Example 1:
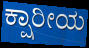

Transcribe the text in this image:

ಕ್ಷಾರೀಯ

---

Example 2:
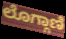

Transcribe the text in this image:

ಲೊಗ್ಗಾಣಿ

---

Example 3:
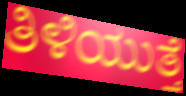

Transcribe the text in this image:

ತಿಳಿಯುತ್ತೆ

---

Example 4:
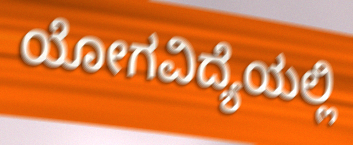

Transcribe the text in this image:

ಯೋಗವಿದ್ಯೆಯಲ್ಲಿ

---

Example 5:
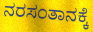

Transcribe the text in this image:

ನರಸಂತಾನಕ್ಕೆ